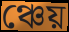
ঞ্চেয়